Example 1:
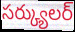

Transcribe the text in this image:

సర్క్యులర్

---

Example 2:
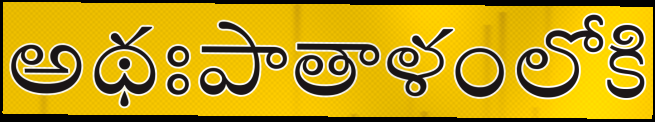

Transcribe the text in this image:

అథఃపాతాళంలోకి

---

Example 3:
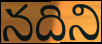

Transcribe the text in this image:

నదిని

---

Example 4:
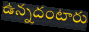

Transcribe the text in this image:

ఉన్నదంటారు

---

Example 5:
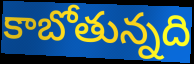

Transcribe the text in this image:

కాబోతున్నది